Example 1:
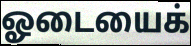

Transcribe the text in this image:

ஓடையைக்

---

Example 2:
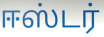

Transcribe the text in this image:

ஈஸ்டர்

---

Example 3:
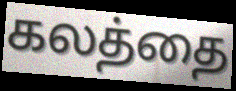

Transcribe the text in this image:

கலத்தை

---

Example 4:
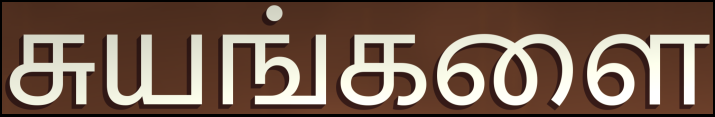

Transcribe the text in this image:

சுயங்களை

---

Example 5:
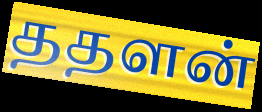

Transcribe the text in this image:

ததளன்